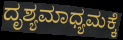
ದೃಶ್ಯಮಾಧ್ಯಮಕ್ಕೆ